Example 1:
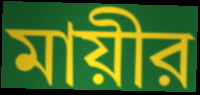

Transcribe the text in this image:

মায়ীর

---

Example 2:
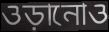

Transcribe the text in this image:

ওড়ানোও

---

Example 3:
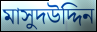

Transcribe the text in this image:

মাসুদউদ্দিন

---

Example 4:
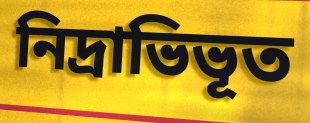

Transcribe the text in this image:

নিদ্রাভিভূত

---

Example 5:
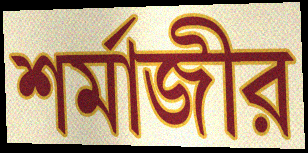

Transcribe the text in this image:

শর্মাজীর